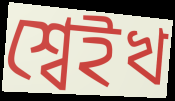
শ্বেইখ